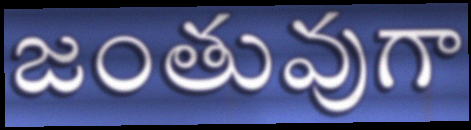
జంతువుగా